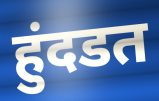
हुंदडत